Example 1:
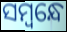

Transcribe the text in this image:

ସମ୍ବନ୍ଧେ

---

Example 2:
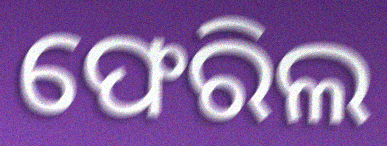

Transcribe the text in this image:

ଫେରିଲ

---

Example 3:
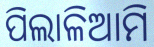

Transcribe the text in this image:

ପିଲାଳିଆମି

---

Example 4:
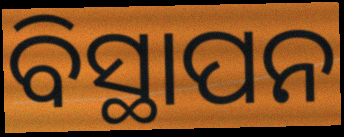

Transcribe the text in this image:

ବିସ୍ଥାପନ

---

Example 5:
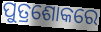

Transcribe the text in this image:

ପୁତ୍ରଶୋକରେ